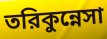
তরিকুন্নেসা